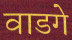
वाडगे